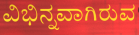
ವಿಭಿನ್ನವಾಗಿರುವ